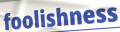
foolishness